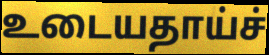
உடையதாய்ச்